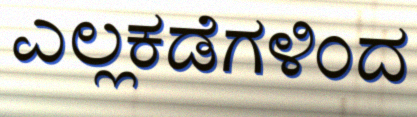
ಎಲ್ಲಕಡೆಗಳಿಂದ